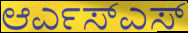
ಆರ್ಎಸ್ಎಸ್